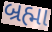
બ્રહ્મા